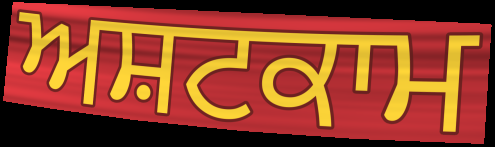
ਅਸ਼ਟਕਾਮ